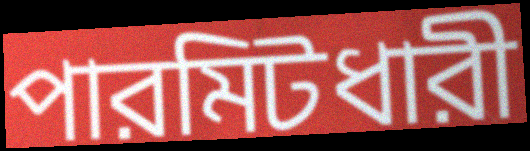
পারমিটধারী